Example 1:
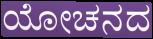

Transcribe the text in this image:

ಯೋಚನದ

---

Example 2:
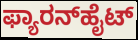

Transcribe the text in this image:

ಫ್ಯಾರನ್‌ಹೈಟ್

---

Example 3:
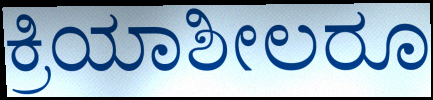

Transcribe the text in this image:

ಕ್ರಿಯಾಶೀಲರೂ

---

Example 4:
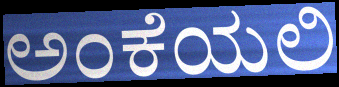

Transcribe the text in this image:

ಅಂಕೆಯಲಿ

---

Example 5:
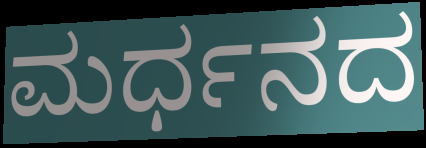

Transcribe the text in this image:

ಮರ್ಧನದ